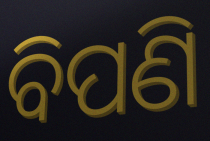
ବିପଣି